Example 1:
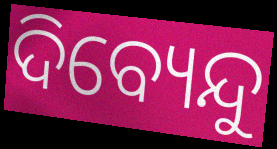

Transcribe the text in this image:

ଦିବ୍ୟେନ୍ଦୁ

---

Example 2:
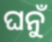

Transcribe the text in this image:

ଘନୁଁ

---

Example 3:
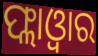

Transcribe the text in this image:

ଫ୍ଲାଓ୍ବାର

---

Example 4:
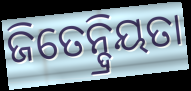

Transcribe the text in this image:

ଜିତେନ୍ଦ୍ରିୟତା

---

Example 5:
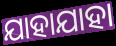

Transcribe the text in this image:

ଯାହାଯାହା